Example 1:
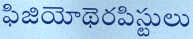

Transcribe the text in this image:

ఫిజియోథెరపిస్టులు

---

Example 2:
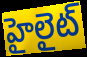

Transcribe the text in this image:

హైలైట్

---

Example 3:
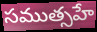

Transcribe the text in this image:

సముత్సహే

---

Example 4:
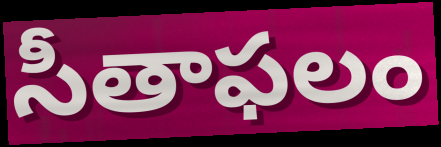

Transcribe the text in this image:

సీతాఫలం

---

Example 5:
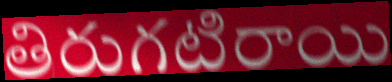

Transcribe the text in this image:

తిరుగటిరాయి